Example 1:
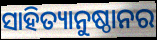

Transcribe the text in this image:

ସାହିତ୍ୟାନୁଷ୍ଠାନର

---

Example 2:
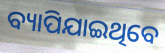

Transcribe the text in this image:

ବ୍ୟାପିଯାଇଥିବେ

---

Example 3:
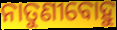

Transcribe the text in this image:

ନାତୁଣୀବୋହୁ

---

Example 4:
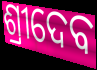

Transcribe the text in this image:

ଶ୍ରୀଦେବ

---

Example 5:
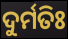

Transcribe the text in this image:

ଦୁର୍ମତିଃ